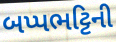
બપ્પભટ્ટિની